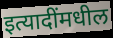
इत्यादींमधील